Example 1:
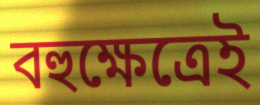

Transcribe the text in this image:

বহুক্ষেত্রেই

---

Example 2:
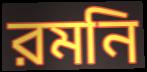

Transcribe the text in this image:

রমনি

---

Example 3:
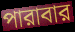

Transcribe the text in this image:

পারাবার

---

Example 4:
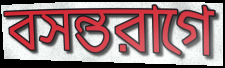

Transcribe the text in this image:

বসন্তরাগে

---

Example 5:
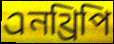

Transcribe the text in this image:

এনথ্রিপি